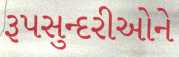
રૂપસુન્દરીઓને